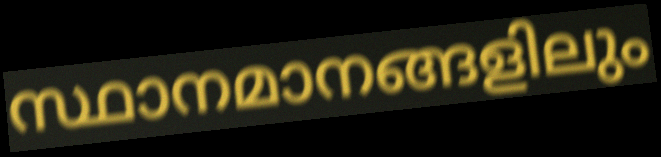
സ്ഥാനമാനങ്ങളിലും